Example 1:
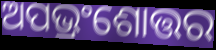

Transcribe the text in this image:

ଅପଭ୍ରଂଶୋତ୍ତର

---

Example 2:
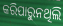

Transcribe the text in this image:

କରିପାରୁନଥିଲି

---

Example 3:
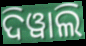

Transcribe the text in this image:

ଦିୱାଲି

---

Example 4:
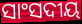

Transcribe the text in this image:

ସାଂସଦୀୟ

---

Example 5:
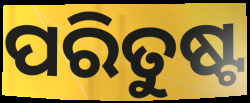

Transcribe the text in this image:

ପରିତୁଷ୍ଟ